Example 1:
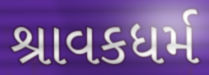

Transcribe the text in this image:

શ્રાવકધર્મ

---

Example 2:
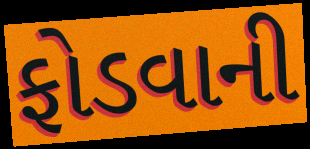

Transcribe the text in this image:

ફોડવાની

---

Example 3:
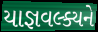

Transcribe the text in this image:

યાજ્ઞવલ્ક્યને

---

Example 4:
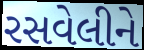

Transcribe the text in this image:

રસવેલીને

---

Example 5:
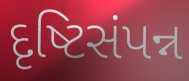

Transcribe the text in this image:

દૃષ્ટિસંપન્ન